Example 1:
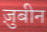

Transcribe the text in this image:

ज़ुबीन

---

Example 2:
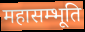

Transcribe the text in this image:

महासम्भूति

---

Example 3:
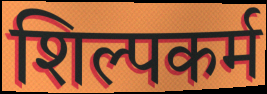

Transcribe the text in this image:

शिल्पकर्म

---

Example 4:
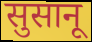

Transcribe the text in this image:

सुसानू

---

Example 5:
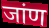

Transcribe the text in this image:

जांण